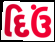
દિઉં